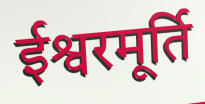
ईश्वरमूर्ति